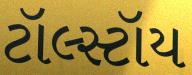
ટૉલ્સ્ટૉય